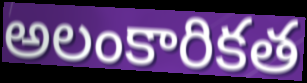
అలంకారికత